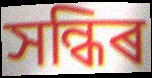
সন্ধিৰ